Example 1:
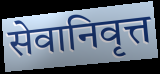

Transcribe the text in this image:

सेवानिवृत्त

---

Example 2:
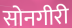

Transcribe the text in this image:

सोनगीरी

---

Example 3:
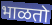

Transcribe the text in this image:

भाळतो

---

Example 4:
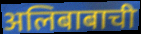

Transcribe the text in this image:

अलिबाबाची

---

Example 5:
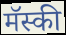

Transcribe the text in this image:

मॅस्की